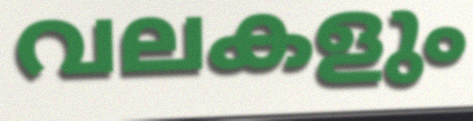
വലകളും